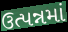
ઉત્પન્નમાં